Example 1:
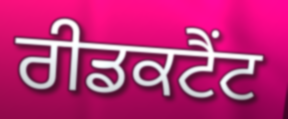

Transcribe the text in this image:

ਰੀਡਕਟੈਂਟ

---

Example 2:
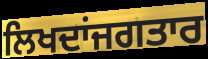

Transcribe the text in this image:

ਲਿਖਦਾਂਜਗਤਾਰ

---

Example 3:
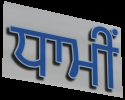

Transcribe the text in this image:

ਧਾਮੀਂ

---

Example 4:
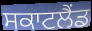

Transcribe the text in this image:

ਸਕਾਟਲੈਂਡ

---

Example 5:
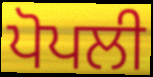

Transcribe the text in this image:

ਪੋਪਲੀ